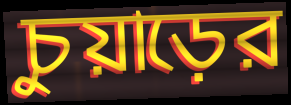
চুয়াড়ের